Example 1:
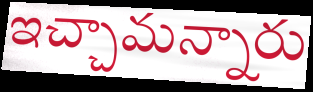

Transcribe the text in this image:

ఇచ్చామన్నారు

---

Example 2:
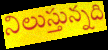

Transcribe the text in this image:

నిలుస్తున్నది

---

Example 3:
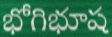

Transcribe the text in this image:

భోగిభూష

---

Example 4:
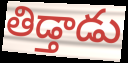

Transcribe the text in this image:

తిడ్తాడు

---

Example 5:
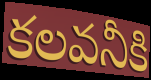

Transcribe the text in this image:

కలవనీకి